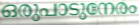
ഒരുപാടുനേരം